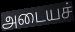
அடையச்